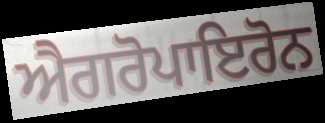
ਐਗਰੋਪਾਇਰੋਨ